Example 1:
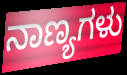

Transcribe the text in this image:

ನಾಣ್ಯಗಳು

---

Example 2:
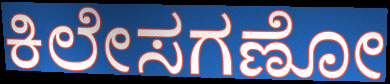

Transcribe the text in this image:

ಕಿಲೇಸಗಣೋ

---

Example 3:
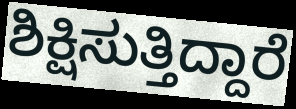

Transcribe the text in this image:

ಶಿಕ್ಷಿಸುತ್ತಿದ್ದಾರೆ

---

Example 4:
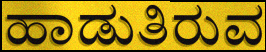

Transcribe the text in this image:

ಹಾಡುತಿರುವ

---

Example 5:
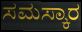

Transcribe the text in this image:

ಸಮಸ್ಕಾರ